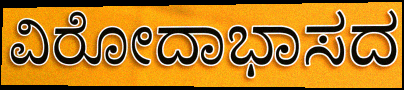
ವಿರೋದಾಭಾಸದ